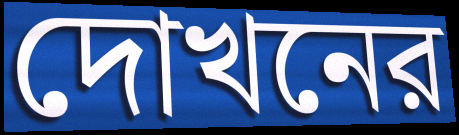
দোখনের